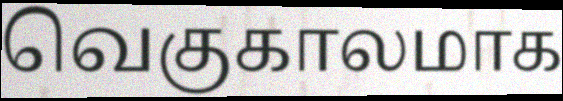
வெகுகாலமாக